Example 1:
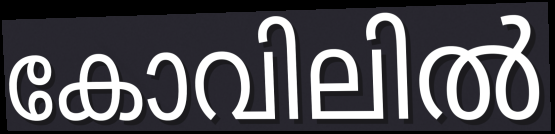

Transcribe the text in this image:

കോവിലിൽ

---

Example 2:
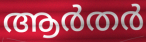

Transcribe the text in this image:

ആർതർ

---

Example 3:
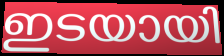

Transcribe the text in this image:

ഇടയായി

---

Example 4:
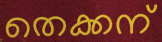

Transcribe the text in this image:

തെക്കന്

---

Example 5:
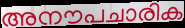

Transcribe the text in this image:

അനൗപചാരിക